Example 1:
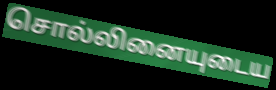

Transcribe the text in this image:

சொல்லினையுடைய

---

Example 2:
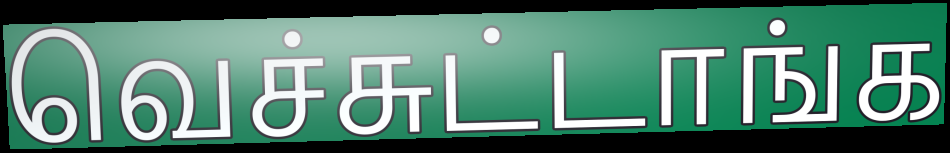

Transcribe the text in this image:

வெச்சுட்டாங்க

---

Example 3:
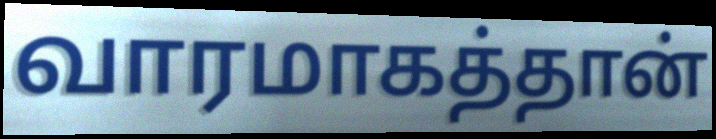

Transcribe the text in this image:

வாரமாகத்தான்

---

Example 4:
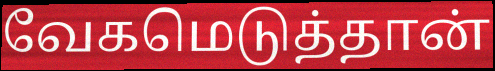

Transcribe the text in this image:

வேகமெடுத்தான்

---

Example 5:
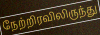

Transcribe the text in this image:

நேற்றிரவிலிருந்து